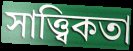
সাত্ত্বিকতা